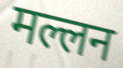
मल्लन